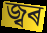
জ্বৰ